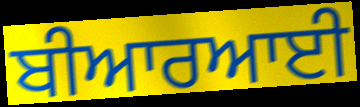
ਬੀਆਰਆਈ